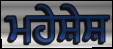
ਮਹੇਸ਼ੇਸ਼